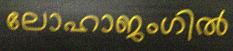
ലോഹാജംഗിൽ